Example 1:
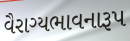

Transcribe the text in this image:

વૈરાગ્યભાવનારૂપ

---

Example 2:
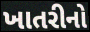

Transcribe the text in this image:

ખાતરીનો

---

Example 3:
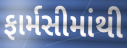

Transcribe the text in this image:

ફાર્મસીમાંથી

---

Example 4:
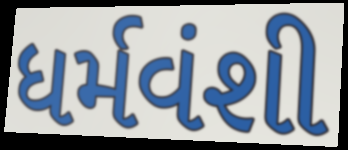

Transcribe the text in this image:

ધર્મવંશી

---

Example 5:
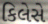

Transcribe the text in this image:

કિલેસે